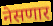
नेसणार